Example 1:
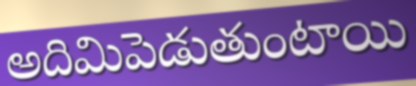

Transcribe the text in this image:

అదిమిపెడుతుంటాయి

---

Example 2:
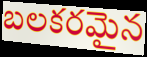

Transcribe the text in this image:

బలకరమైన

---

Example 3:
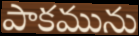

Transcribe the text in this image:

పాకమును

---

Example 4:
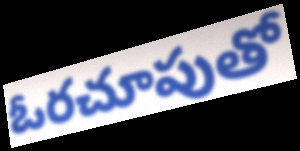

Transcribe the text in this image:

ఓరచూపుతో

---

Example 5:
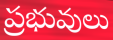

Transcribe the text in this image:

ప్రభువులు